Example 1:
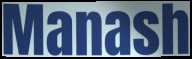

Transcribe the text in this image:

Manash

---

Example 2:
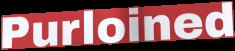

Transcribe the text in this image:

Purloined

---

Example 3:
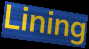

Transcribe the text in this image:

Lining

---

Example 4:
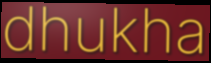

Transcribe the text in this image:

dhukha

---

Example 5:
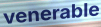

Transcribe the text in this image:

venerable